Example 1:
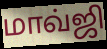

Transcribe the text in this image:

மாவ்ஜி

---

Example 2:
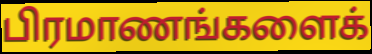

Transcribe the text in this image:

பிரமாணங்களைக்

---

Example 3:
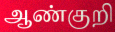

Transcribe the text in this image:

ஆண்குறி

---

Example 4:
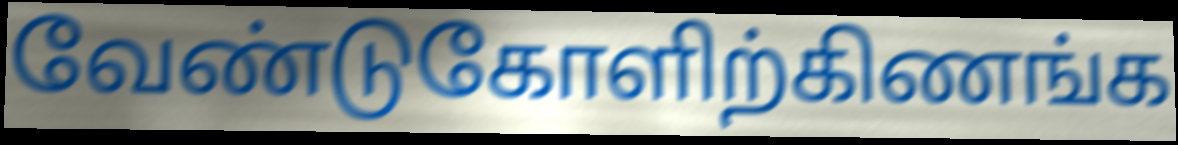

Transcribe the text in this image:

வேண்டுகோளிற்கிணங்க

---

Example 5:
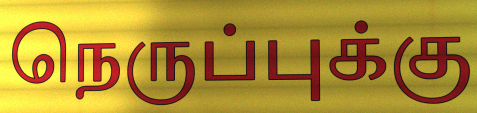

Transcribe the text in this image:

நெருப்புக்கு